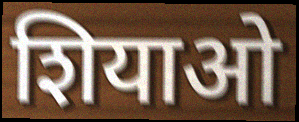
शियाओ